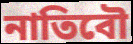
নাতিবৌ